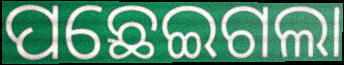
ପଛେଇଗଲା